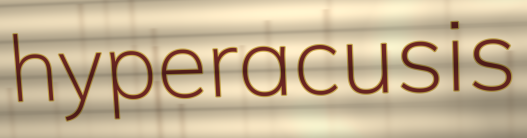
hyperacusis